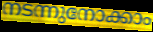
നടന്നുനോക്കാം